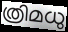
ത്രിമധു